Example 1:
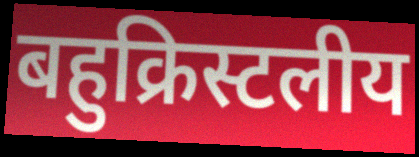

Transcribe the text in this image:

बहुक्रिस्टलीय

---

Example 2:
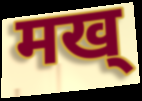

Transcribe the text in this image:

मख्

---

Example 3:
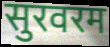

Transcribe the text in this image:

सुरवरम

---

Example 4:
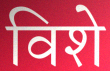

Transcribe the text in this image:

विशे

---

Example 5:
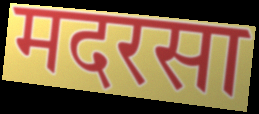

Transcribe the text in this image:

मदरसा